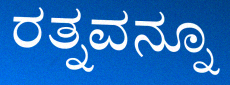
ರತ್ನವನ್ನೂ